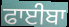
ਫਾਈਬਾ